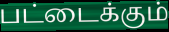
பட்டைக்கும்